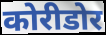
कोरीडोर